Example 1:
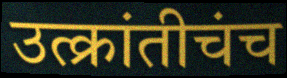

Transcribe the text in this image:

उत्क्रांतीचंच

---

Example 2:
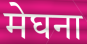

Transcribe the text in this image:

मेघना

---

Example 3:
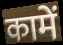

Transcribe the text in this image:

कामें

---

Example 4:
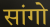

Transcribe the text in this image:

सांगो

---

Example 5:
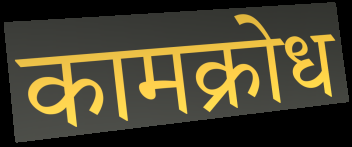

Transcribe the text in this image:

कामक्रोध